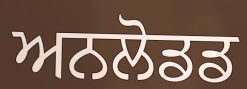
ਅਨਲੋਡਡ